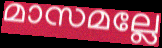
മാസമല്ലേ